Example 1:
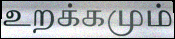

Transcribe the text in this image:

உறக்கமும்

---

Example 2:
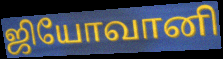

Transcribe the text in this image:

ஜியோவானி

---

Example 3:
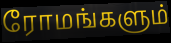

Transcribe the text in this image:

ரோமங்களும்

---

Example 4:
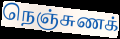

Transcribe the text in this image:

நெஞ்சுணக்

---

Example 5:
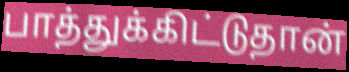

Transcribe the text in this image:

பாத்துக்கிட்டுதான்